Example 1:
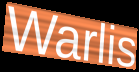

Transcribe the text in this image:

Warlis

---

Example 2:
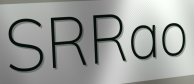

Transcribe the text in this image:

SRRao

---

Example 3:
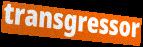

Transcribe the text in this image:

transgressor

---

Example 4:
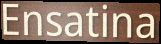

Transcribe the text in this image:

Ensatina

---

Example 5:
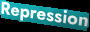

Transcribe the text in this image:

Repression